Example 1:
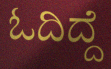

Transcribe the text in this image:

ಓದಿದ್ದೆ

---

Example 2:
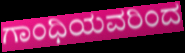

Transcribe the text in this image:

ಗಾಂಧಿಯವರಿಂದ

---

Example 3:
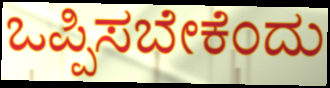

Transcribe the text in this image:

ಒಪ್ಪಿಸಬೇಕೆಂದು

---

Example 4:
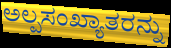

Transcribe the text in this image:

ಅಲ್ಪಸಂಖ್ಯಾತರನ್ನು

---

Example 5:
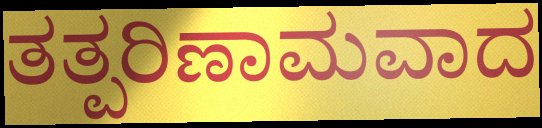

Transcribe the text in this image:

ತತ್ಪರಿಣಾಮವಾದ